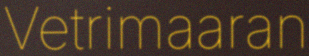
Vetrimaaran